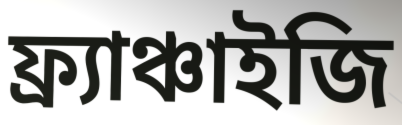
ফ্র্যাঞ্চাইজি